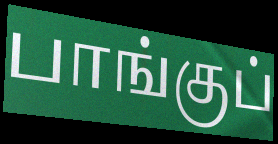
பாங்குப்